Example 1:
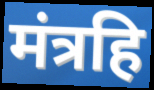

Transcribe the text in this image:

मंत्रहि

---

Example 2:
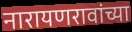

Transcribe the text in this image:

नारायणरावांच्या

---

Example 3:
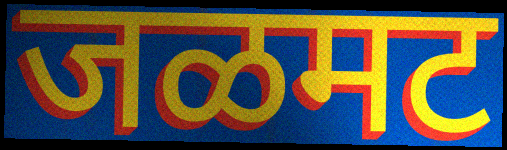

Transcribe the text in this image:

जळमट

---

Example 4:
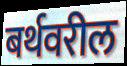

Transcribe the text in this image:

बर्थवरील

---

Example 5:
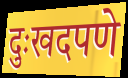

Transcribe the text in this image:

दुःखदपणे